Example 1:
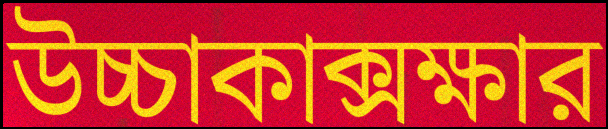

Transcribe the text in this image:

উচ্চাকাক্সক্ষার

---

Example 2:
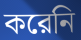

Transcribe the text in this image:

করেনি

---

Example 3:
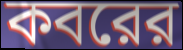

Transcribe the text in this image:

কবরের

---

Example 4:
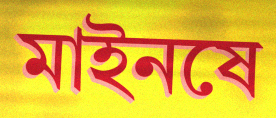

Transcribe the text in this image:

মাইনষে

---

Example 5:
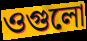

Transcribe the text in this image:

ওগুলো